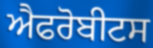
ਐਫਰੋਬੀਟਸ